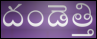
దండెత్తి